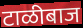
टाळीबाज